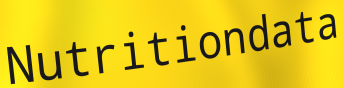
Nutritiondata